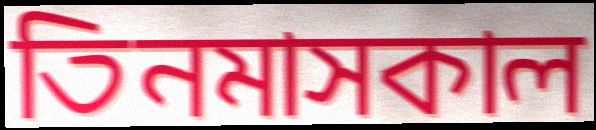
তিনমাসকাল